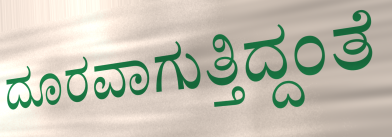
ದೂರವಾಗುತ್ತಿದ್ದಂತೆ